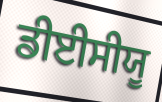
ਡੀਈਸੀਯੂ